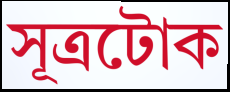
সূত্ৰটোক